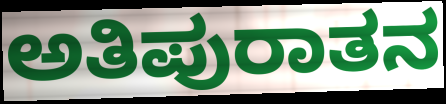
ಅತಿಪುರಾತನ